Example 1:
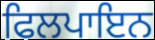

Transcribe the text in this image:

ਫਿਲਪਾਇਨ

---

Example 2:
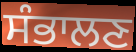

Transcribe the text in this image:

ਸੰਭਾਲਣ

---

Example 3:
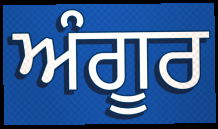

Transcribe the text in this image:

ਅੰਗੂਰ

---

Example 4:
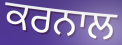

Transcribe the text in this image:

ਕਰਨਾਲ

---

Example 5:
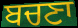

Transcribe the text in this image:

ਬਚਣਾ